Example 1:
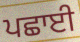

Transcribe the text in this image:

ਪਛਾਈ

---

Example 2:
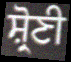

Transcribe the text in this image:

ਸ਼੍ਰੋਣੀ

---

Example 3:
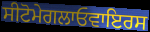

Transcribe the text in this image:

ਸੀਟੋਮੇਗਲਾਓਵਾਇਰਸ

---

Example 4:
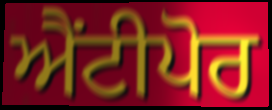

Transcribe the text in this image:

ਐਂਟੀਪੋਰ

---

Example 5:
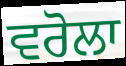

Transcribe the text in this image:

ਵਰੋਲਾ